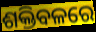
ଶକ୍ତିବଳରେ